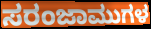
ಸರಂಜಾಮುಗಳ